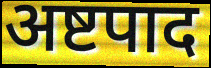
अष्टपाद